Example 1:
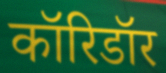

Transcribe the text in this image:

कॉरिडॉर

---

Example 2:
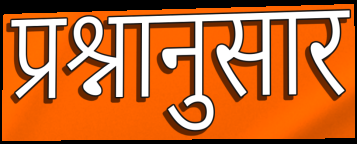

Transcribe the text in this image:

प्रश्नानुसार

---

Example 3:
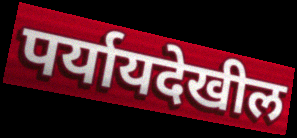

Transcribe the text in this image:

पर्यायदेखील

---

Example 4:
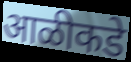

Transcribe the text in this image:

आळीकडे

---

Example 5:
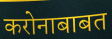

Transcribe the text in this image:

करोनाबाबत